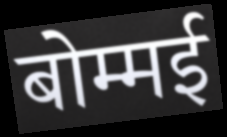
बोम्मई